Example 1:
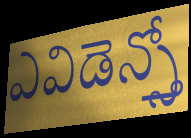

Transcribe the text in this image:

ఎవిడెన్స్తో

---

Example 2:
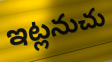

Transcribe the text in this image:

ఇట్లనుచు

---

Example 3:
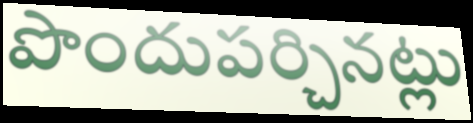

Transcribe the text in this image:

పొందుపర్చినట్లు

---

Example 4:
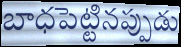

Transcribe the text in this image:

బాధపెట్టినప్పుడు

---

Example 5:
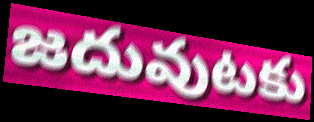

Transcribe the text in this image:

జదువుటకు